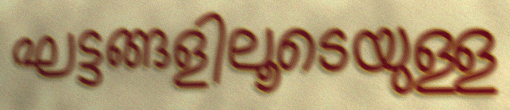
ഘട്ടങ്ങളിലൂടെയുള്ള